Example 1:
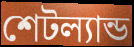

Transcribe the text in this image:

শেটল্যান্ড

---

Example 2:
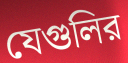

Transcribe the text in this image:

যেগুলির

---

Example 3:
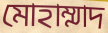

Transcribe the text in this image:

মোহাম্মাদ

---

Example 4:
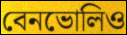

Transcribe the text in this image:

বেনভোলিও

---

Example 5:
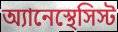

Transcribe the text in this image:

অ্যানেস্থেসিস্ট